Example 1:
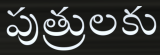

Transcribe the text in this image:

పుత్రులకు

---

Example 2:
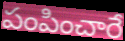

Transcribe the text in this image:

పంపించారే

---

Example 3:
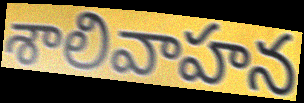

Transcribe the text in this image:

శాలివాహన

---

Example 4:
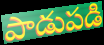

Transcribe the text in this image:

పాడుపడి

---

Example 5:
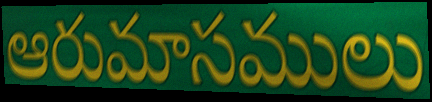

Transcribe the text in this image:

ఆరుమాసములు